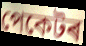
পেকেটৰ